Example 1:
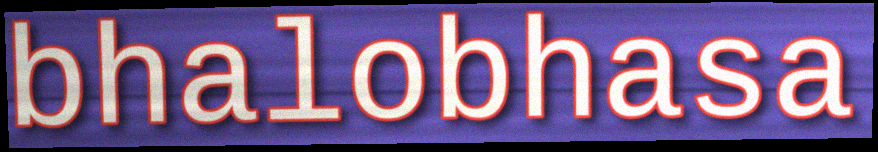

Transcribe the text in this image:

bhalobhasa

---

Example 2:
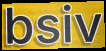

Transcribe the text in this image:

bsiv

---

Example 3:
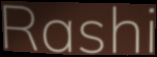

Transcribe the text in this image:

Rashi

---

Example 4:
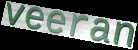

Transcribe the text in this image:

veeran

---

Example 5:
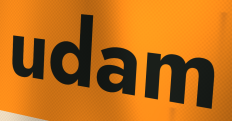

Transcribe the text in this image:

udam